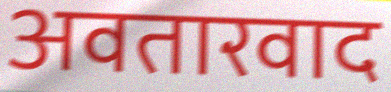
अवतारवाद